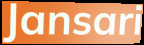
Jansari